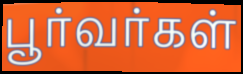
பூர்வர்கள்